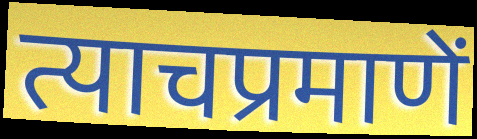
त्याचप्रमाणें